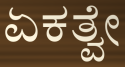
ಏಕತ್ವೇ